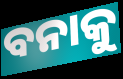
ବନାକୁ